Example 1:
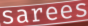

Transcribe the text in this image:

sarees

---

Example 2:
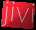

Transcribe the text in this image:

jivi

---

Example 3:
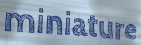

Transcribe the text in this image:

miniature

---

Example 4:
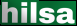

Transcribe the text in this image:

hilsa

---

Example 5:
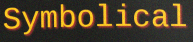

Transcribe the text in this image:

Symbolical